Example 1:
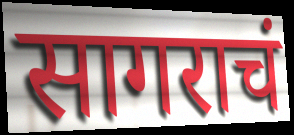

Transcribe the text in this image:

सागराचं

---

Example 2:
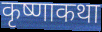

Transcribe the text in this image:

कृष्णाकथा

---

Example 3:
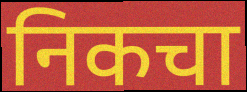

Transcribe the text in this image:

निकचा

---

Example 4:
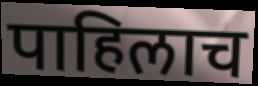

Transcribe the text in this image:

पाहिलाच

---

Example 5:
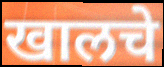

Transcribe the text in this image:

खालचे